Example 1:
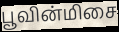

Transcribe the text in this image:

பூவின்மிசை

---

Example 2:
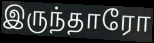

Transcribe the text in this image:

இருந்தாரோ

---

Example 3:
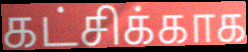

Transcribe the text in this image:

கட்சிக்காக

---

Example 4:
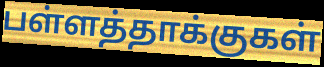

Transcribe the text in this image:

பள்ளத்தாக்குகள்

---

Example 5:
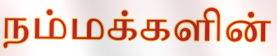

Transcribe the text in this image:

நம்மக்களின்